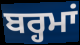
ਬਰ੍ਹਮਾਂ